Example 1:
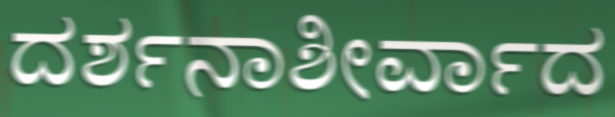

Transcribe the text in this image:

ದರ್ಶನಾಶೀರ್ವಾದ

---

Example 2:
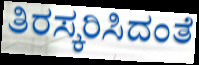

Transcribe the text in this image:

ತಿರಸ್ಕರಿಸಿದಂತೆ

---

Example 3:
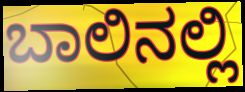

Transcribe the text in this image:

ಬಾಲಿನಲ್ಲಿ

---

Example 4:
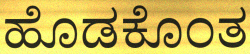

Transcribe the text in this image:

ಹೊಡಕೊಂತ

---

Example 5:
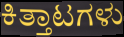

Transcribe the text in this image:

ಕಿತ್ತಾಟಗಳು